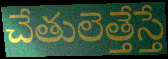
చేతులెత్తేస్తే